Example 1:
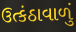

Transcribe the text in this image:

ઉત્કંઠાવાળું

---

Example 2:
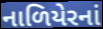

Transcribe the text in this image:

નાળિયેરનાં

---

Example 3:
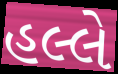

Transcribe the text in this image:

હલ્લે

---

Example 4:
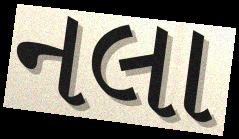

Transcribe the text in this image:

નલા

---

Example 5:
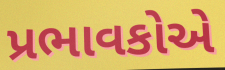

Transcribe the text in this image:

પ્રભાવકોએ